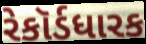
રેકૉર્ડધારક